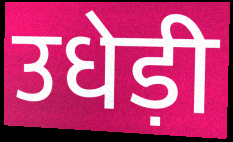
उधेड़ी